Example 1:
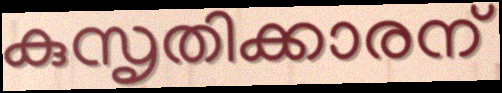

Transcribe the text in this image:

കുസൃതിക്കാരന്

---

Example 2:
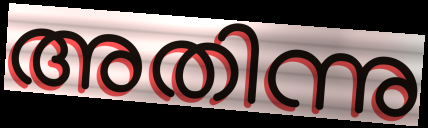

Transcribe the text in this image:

അതിന്നു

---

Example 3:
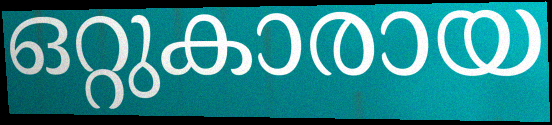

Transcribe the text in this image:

ഒറ്റുകാരായ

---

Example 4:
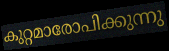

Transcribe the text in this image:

കുറ്റമാരോപിക്കുന്നു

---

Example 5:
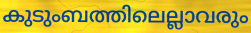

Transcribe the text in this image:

കുടുംബത്തിലെല്ലാവരും